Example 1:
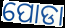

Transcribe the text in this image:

ପୋଡା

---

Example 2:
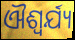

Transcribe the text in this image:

ଐଶ୍ଵର୍ଯ୍ୟ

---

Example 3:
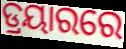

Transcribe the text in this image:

ଡ୍ରୟାରରେ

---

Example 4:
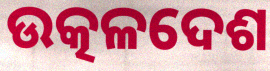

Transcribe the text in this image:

ଉତ୍କଳଦେଶ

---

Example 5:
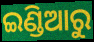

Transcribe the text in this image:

ଇଣ୍ଡିଆରୁ